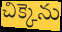
చిక్కెను